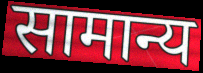
सामान्य